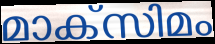
മാക്‌സിമം